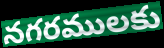
నగరములకు